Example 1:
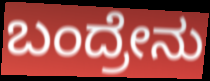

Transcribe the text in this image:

ಬಂದ್ರೇನು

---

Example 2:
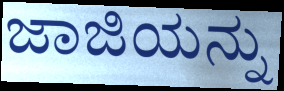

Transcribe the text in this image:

ಜಾಜಿಯನ್ನು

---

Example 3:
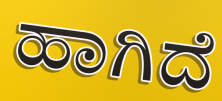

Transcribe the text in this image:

ಹಾಗಿದೆ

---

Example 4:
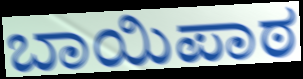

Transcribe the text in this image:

ಬಾಯಿಪಾಠ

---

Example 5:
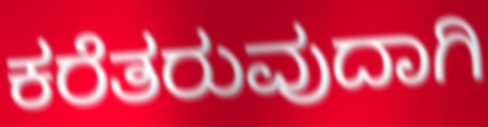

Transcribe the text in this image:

ಕರೆತರುವುದಾಗಿ